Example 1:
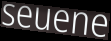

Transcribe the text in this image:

seuene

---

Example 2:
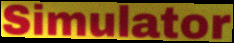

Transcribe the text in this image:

Simulator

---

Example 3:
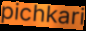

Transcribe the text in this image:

pichkari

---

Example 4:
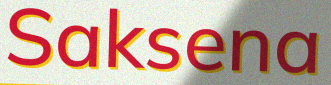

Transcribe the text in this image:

Saksena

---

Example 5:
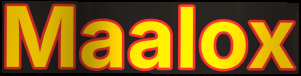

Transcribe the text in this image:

Maalox